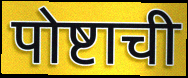
पोष्टाची